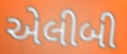
એલીબી